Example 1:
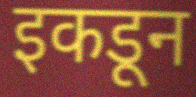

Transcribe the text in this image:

इकडून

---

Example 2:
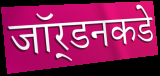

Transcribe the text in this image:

जॉर्डनकडे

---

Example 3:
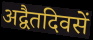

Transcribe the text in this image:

अद्वैतदिवसें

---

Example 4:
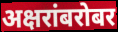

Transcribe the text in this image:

अक्षरांबरोबर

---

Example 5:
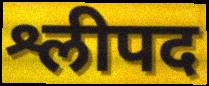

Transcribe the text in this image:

श्लीपद